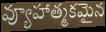
వ్యూహాత్మకమైన